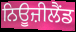
ਨਿਊਜ਼ੀਲੈੰਡ